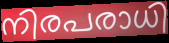
നിരപരാധി